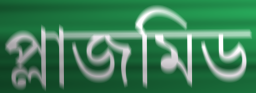
প্লাজমিড